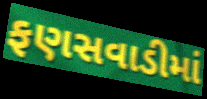
ફણસવાડીમાં